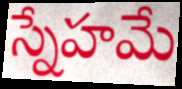
స్నేహమే